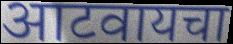
आटवायचा